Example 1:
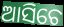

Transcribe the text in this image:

ଆସିଚେ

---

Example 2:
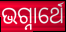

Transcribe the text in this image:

ଭଗ୍ନାର୍ଥେ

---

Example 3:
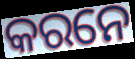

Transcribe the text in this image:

କରନେ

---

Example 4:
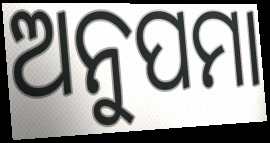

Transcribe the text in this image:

ଅନୁପମା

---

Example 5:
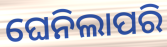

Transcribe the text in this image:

ଘେନିଲାପରି